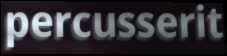
percusserit